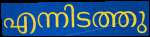
എന്നിടത്തു